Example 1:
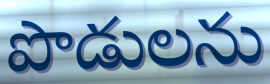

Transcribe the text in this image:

పొడులను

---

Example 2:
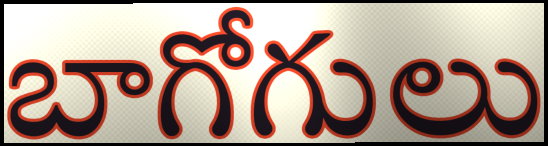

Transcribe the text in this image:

బాగోగులు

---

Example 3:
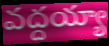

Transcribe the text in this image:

వద్దయ్యా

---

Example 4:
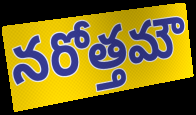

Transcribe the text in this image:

నరోత్తమౌ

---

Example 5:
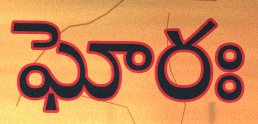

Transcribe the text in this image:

ఘోరః